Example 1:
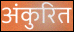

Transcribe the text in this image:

अंकुरित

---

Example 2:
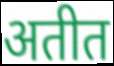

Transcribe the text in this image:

अतीत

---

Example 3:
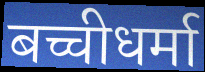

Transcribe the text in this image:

बच्चीधर्मा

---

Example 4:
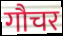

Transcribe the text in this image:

गौचर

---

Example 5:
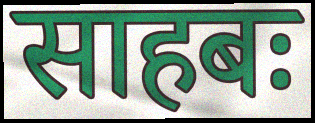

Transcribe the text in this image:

साहबः